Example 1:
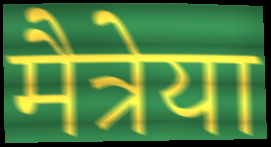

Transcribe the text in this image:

मैत्रेया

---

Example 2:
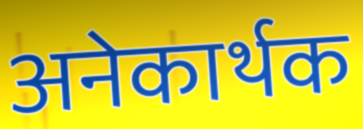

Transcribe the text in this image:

अनेकार्थक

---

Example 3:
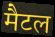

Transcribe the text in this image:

मैटल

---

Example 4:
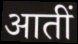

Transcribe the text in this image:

आतीं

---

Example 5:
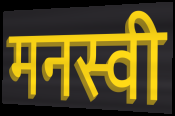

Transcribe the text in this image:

मनस्वी